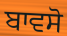
ਬਾਵਸੋ